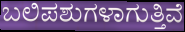
ಬಲಿಪಶುಗಳಾಗುತ್ತಿವೆ